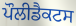
ਪੌਲੀਡੈਕਟਸ